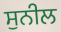
ਸੁਨੀਲ